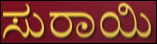
ಸುರಾಯಿ